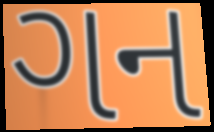
ગન